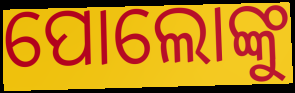
ପୋଲୋଙ୍କୁ